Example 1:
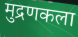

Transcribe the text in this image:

मुद्रणकला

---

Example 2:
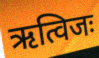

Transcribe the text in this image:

ऋत्विजः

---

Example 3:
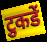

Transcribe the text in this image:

टुकडें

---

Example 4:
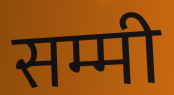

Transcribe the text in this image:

सम्मी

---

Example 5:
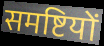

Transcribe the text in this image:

समष्टियों